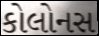
કોલોનસ